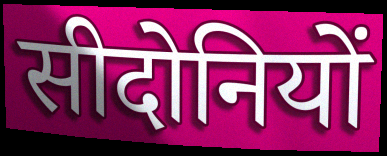
सीदोनियों